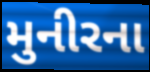
મુનીરના